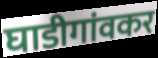
घाडीगांवकर